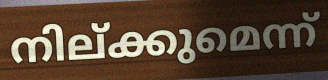
നില്ക്കുമെന്ന്